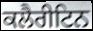
ਕਲੈਰੀਟਿਨ